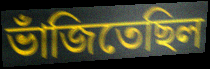
ভাঁজিতেছিল